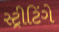
સ્ટ્રીટિંગે